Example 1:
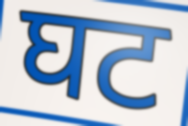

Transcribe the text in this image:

घट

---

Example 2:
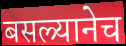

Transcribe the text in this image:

बसल्यानेच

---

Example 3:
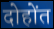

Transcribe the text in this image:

दोहोंत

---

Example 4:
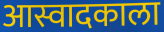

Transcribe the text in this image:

आस्वादकाला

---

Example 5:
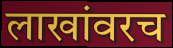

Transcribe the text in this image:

लाखांवरच